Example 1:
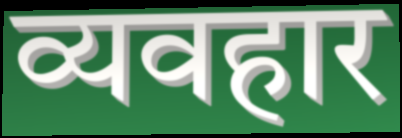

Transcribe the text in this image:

व्यवहार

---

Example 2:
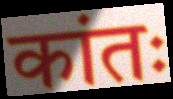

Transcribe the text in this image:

कांतः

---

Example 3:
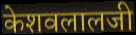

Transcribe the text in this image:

केशवलालजी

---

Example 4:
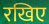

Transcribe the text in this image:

रखिए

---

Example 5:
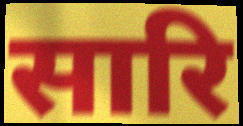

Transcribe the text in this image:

सारि